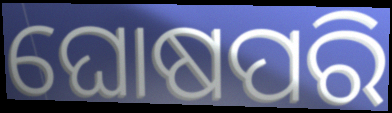
ଘୋଷପରି